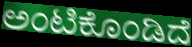
ಅಂಟಿಕೊಂಡಿದೆ